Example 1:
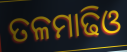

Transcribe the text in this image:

ତଳମାଢିଓ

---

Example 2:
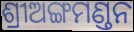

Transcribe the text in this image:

ଶ୍ରୀଅଙ୍ଗମଣ୍ଡନ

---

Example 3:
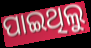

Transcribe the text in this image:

ପାଇଥିଲୁ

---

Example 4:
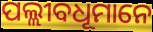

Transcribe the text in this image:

ପଲ୍ଲୀବଧୂମାନେ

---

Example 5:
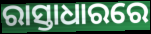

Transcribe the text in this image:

ରାସ୍ତାଧାରରେ